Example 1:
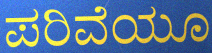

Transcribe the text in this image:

ಪರಿವೆಯೂ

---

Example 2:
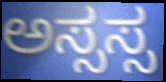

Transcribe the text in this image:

ಅಸ್ಸಸ್ಸ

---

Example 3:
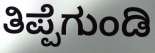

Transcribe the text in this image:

ತಿಪ್ಪೆಗುಂಡಿ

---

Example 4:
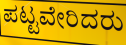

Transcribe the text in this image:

ಪಟ್ಟವೇರಿದರು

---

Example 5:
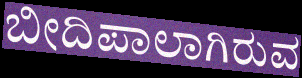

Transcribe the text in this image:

ಬೀದಿಪಾಲಾಗಿರುವ